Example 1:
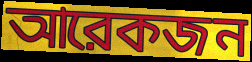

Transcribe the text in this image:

আরেকজন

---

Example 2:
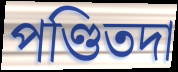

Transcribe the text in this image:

পণ্ডিতদা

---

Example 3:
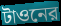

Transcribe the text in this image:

টাওনের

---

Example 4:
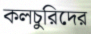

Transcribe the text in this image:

কলচুরিদের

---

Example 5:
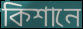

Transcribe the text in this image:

কিশানে